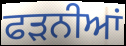
ਫੜਨੀਆਂ